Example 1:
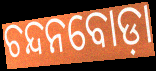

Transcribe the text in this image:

ଚନ୍ଦନବୋଡ଼ା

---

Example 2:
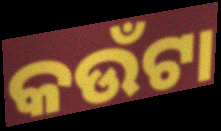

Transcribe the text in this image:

କଉଁଟା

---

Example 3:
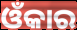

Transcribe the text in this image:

ଓଁକାର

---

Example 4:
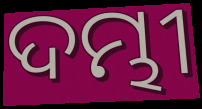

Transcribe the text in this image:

ଦମ୍ଭୀ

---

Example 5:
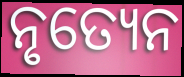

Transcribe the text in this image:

ନୃତ୍ୟେନ